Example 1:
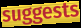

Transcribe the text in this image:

suggests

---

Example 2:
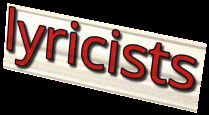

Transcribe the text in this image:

lyricists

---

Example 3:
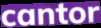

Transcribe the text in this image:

cantor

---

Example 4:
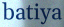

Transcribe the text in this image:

batiya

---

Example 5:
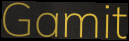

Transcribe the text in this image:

Gamit